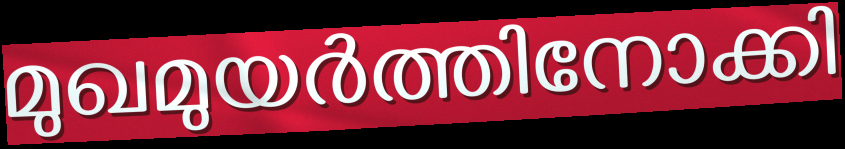
മുഖമുയർത്തിനോക്കി